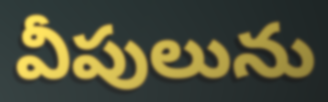
వీపులును